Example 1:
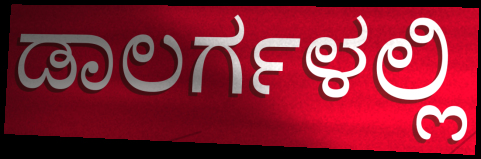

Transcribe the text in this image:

ಡಾಲರ್ಗಳಲ್ಲಿ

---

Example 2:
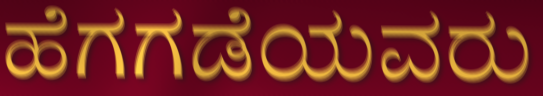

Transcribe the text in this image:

ಹೆಗಗಡೆಯವರು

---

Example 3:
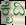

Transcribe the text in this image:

ಕೈದಿ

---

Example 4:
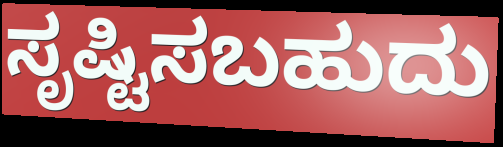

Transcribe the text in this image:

ಸೃಷ್ಟಿಸಬಹುದು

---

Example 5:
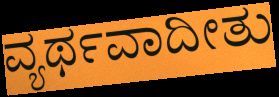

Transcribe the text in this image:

ವ್ಯರ್ಥವಾದೀತು